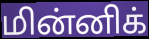
மின்னிக்